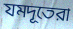
যমদূতেরা